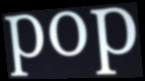
pop